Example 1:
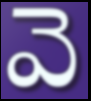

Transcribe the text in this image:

వె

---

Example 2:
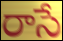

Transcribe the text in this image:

రాసే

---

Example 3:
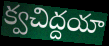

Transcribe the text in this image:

క్వచిద్దయా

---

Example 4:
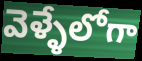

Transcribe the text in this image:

వెళ్ళేలోగా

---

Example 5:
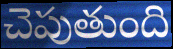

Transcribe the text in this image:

చెపుతుంది